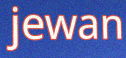
jewan